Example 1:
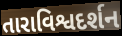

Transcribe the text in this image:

તારાવિશ્વદર્શન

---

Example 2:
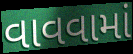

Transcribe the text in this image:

વાવવામાં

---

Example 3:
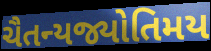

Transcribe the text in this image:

ચૈતન્યજ્યોતિમય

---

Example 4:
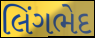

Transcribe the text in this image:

લિંગભેદ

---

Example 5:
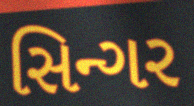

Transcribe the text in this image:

સિન્ગર